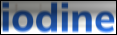
iodine